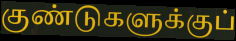
குண்டுகளுக்குப்